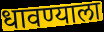
धावण्याला